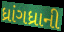
ધ્રાંગધ્રાની